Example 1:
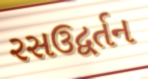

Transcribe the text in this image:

રસઉદ્વર્તન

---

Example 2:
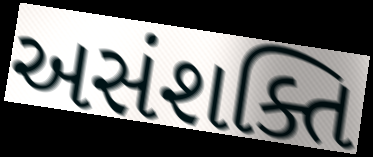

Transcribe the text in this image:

અસંશક્તિ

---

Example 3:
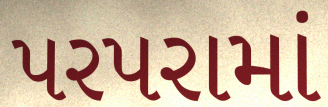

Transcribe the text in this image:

પરપરામાં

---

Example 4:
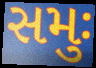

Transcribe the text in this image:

સમુઃ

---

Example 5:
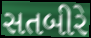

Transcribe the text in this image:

સતબીરે